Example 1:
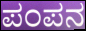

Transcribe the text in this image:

ಪಂಪನ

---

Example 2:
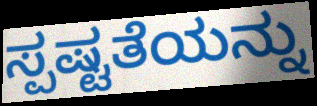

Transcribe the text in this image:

ಸ್ಪಷ್ಟತೆಯನ್ನು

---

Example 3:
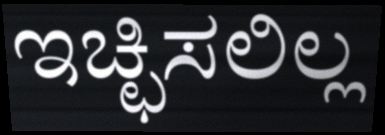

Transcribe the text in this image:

ಇಚ್ಛಿಸಲಿಲ್ಲ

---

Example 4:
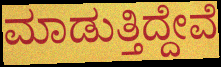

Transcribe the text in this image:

ಮಾಡುತ್ತಿದ್ದೇವೆ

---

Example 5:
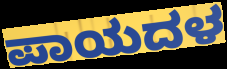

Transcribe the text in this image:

ಪಾಯದಳ